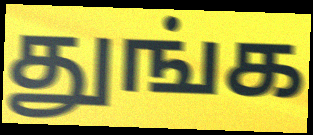
துங்க